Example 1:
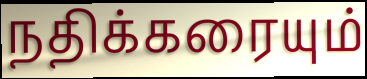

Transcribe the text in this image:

நதிக்கரையும்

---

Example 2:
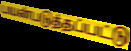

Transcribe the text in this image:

பயன்படுத்தப்பட்டு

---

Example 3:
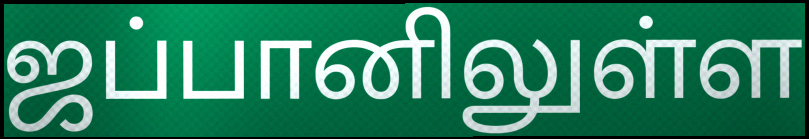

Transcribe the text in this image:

ஜப்பானிலுள்ள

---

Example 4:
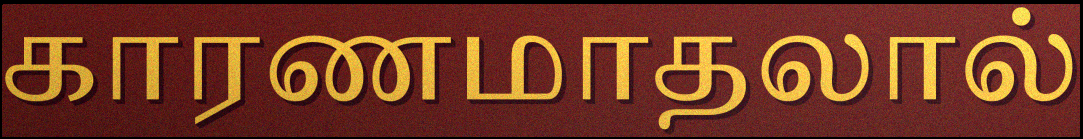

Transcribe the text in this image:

காரணமாதலால்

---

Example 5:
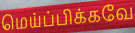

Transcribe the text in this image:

மெய்ப்பிக்கவே